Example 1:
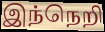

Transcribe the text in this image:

இந்நெறி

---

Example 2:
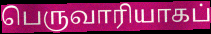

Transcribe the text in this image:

பெருவாரியாகப்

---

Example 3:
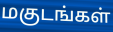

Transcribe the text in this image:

மகுடங்கள்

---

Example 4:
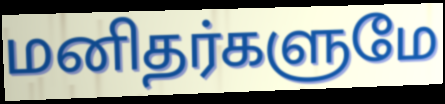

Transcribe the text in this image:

மனிதர்களுமே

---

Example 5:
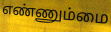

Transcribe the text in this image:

எண்ணும்மை